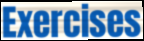
Exercises